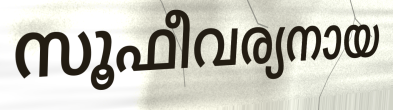
സൂഫീവര്യനായ